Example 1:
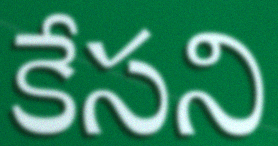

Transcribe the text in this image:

కేసని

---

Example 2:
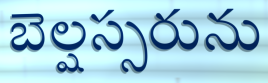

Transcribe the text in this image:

బెల్షస్సరును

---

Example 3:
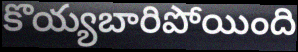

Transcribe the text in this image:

కొయ్యబారిపోయింది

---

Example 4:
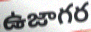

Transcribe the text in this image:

ఉజాగర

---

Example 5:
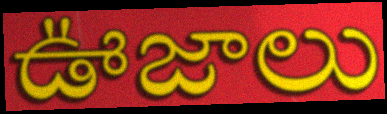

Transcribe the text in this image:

ఊజాలు